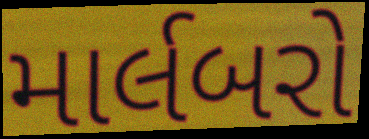
માર્લબરો